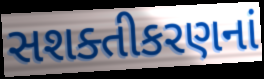
સશક્તીકરણનાં